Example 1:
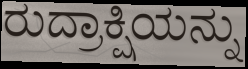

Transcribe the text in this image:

ರುದ್ರಾಕ್ಷಿಯನ್ನು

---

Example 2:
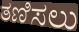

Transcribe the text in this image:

ತಣಿಸಲು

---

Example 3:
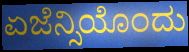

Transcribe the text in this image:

ಏಜೆನ್ಸಿಯೊಂದು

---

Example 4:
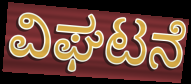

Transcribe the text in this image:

ವಿಘಟನೆ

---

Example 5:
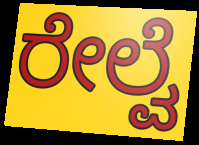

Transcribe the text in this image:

ರೇಲ್ವೆ